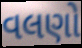
વલણો